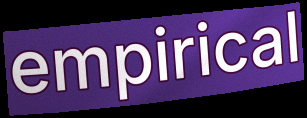
empirical